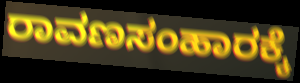
ರಾವಣಸಂಹಾರಕ್ಕೆ